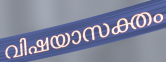
വിഷയാസക്തം